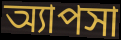
অ্যাপসা